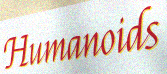
Humanoids